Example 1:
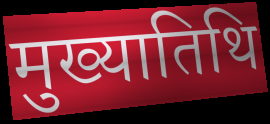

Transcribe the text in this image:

मुख्यातिथि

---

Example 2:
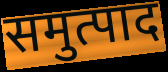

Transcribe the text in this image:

समुत्पाद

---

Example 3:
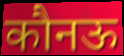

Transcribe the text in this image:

कौनऊ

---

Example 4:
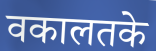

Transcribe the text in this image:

वकालतके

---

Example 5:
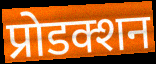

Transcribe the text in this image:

प्रोडक्‍शन